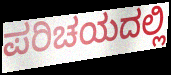
ಪರಿಚಯದಲ್ಲಿ